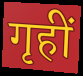
गृहीं